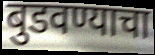
बुडवण्याचा